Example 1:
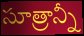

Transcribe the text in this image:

సూత్రాన్నీ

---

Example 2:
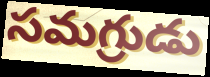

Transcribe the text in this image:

సమగ్రుడు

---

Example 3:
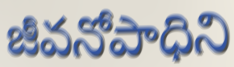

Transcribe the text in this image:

జీవనోపాధిని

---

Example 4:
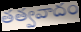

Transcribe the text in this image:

తత్వవాదం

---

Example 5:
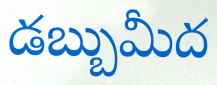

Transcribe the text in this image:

డబ్బుమీద